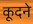
कूदने